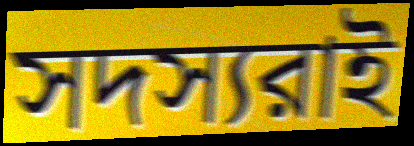
সদস্যরাই